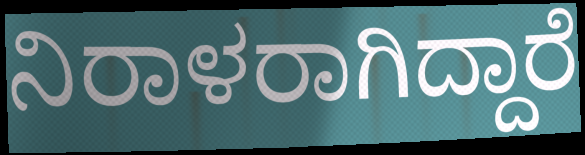
ನಿರಾಳರಾಗಿದ್ದಾರೆ